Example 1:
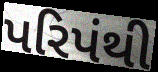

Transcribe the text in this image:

પરિપંથી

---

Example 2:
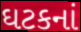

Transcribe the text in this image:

ઘટકનાં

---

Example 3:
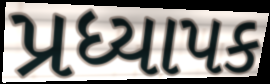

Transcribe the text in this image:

પ્રધ્યાપક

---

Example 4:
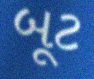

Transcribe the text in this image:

બૂટ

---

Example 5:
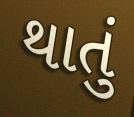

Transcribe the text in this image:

થાતું